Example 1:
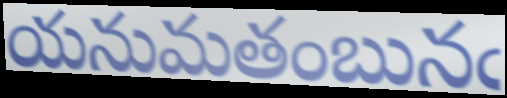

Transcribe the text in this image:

యనుమతంబునఁ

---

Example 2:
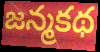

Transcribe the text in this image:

జన్మకథ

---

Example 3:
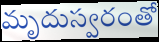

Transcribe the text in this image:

మృదుస్వరంతో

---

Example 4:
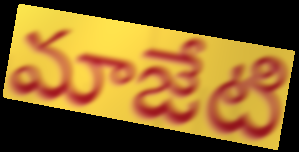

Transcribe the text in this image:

మాజేటి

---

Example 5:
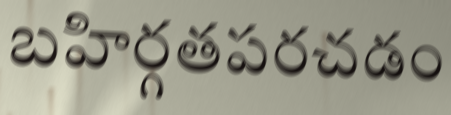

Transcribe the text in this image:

బహిర్గతపరచడం